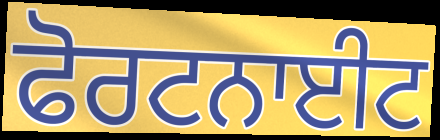
ਫੋਰਟਨਾਈਟ